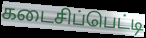
கடைசிப்பெட்டி